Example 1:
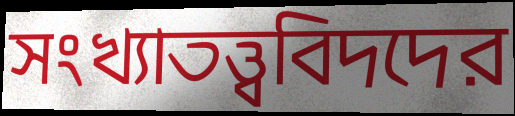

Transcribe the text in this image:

সংখ্যাতত্ত্ববিদদের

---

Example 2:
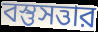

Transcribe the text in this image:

বস্তুসত্তার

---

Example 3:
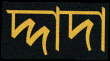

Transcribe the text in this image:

দ্দাদা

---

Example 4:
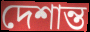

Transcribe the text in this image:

দেশান্ত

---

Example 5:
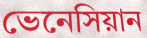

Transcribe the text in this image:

ভেনেসিয়ান